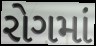
રોગમાં